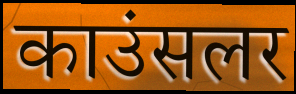
काउंसलर